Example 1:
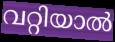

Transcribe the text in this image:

വറ്റിയാൽ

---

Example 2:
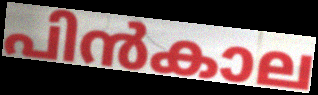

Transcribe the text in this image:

പിൻകാല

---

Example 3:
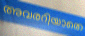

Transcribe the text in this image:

അവരറിയാതെ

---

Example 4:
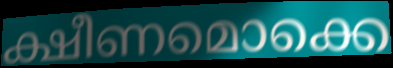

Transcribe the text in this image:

ക്ഷീണമൊക്കെ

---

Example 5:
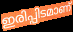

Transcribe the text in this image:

ഇരിപ്പിടമാണ്